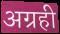
अग्रही